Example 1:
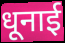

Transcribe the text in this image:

धूनाई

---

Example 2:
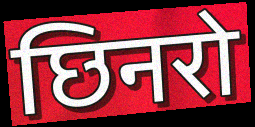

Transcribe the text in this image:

छिनरो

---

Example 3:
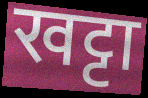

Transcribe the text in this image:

खट्टा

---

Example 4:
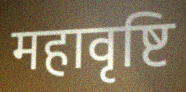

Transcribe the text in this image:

महावृष्टि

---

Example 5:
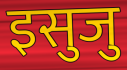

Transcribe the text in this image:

इसुजु